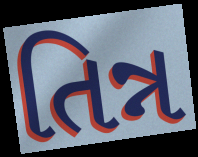
તિન્ન